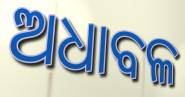
ଅଧାବଳ